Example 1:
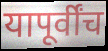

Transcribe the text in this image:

यापूर्वींच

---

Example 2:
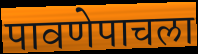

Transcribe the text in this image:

पावणेपाचला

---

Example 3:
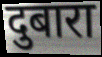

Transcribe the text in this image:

दुबारा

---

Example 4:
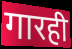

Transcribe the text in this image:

गारही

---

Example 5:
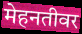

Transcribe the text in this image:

मेहनतीवर